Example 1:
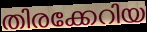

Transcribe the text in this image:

തിരക്കേറിയ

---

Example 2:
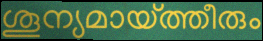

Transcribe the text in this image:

ശൂന്യമായ്ത്തീരും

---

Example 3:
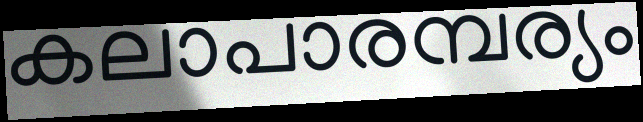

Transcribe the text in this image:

കലാപാരമ്പര്യം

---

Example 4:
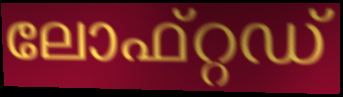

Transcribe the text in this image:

ലോഫ്റ്റഡ്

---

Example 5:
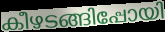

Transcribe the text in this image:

കീഴടങ്ങിപ്പോയി